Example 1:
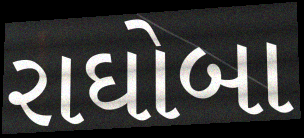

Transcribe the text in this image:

રાઘોબા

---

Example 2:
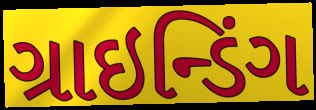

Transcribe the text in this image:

ગ્રાઇન્ડિંગ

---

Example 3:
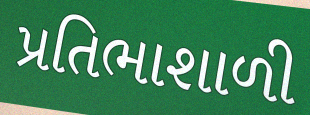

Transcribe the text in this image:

પ્રતિભાશાળી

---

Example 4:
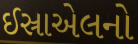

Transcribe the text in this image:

ઈસ્રાએલનો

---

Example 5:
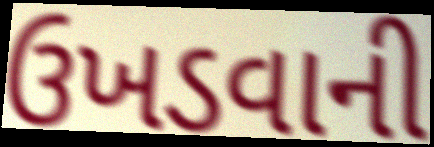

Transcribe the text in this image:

ઉખડવાની